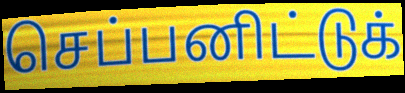
செப்பனிட்டுக்